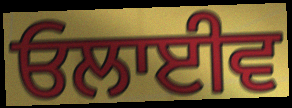
ਓਲਾਈਵ